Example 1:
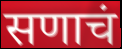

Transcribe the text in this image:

सणाचं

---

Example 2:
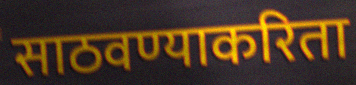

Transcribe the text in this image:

साठवण्याकरिता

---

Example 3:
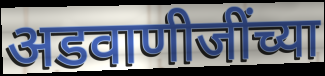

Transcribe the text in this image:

अडवाणीजींच्या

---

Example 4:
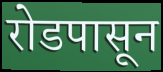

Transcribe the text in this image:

रोडपासून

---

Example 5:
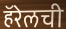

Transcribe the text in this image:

हॅरेलची